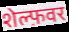
शेल्फ़वर